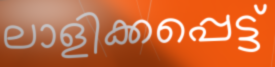
ലാളിക്കപ്പെട്ട്